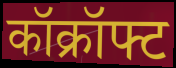
कॉक्रॉफ्ट